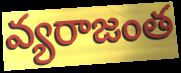
వ్యరాజంత